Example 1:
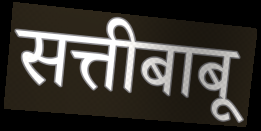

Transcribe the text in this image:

सत्तीबाबू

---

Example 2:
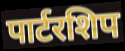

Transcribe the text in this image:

पार्टरशिप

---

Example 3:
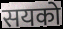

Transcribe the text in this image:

सयको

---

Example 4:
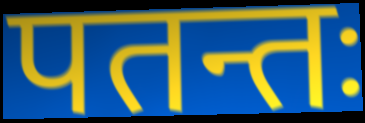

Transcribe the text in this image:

पतन्तः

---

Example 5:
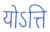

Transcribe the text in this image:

योऽत्ति